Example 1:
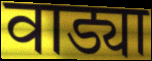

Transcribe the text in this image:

वाड्या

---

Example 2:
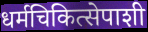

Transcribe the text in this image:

धर्मचिकित्सेपाशी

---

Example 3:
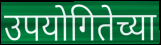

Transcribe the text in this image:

उपयोगितेच्या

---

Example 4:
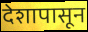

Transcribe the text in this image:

देशापासून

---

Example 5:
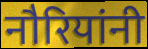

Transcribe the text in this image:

नौरियांनी